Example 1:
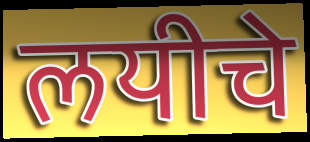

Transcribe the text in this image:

लयीचे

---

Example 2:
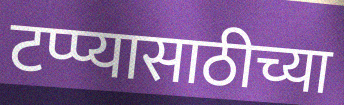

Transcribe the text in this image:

टप्प्यासाठीच्या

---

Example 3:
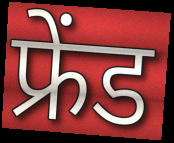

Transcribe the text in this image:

फ्रेंड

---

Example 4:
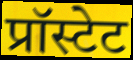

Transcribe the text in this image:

प्रॉस्टेट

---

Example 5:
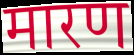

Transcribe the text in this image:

मारण